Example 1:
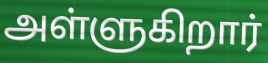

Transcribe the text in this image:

அள்ளுகிறார்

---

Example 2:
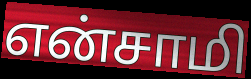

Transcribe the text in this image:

என்சாமி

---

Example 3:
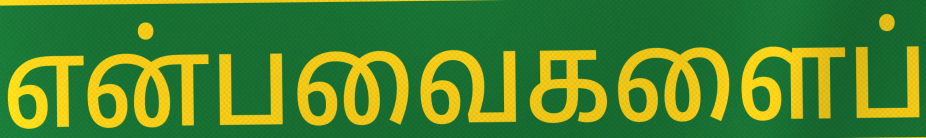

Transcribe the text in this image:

என்பவைகளைப்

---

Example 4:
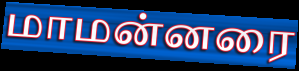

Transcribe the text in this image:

மாமன்னரை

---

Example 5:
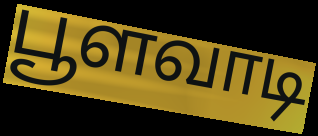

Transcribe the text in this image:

பூளவாடி